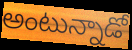
అంటున్నాడో